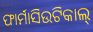
ଫାର୍ମାସିଉଟିକାଲ୍